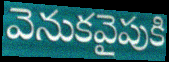
వెనుకవైపుకి